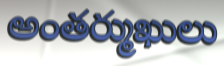
అంతర్ముఖులు